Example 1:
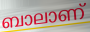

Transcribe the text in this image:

ബാലാണ്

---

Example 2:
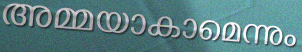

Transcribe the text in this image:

അമ്മയാകാമെന്നും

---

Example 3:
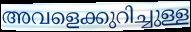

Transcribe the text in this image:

അവളെക്കുറിച്ചുള്ള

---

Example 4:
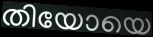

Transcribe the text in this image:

തിയോയെ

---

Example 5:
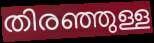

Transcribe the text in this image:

തിരഞ്ഞുള്ള